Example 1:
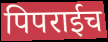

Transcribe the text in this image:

पिपराईच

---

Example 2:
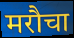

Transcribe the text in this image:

मरौचा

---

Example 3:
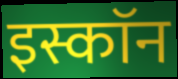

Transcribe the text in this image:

इस्‍कॉन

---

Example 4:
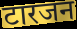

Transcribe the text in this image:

टारजन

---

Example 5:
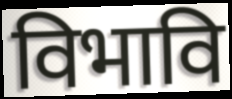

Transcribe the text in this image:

विभावि